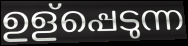
ഉള്പ്പെടുന്ന